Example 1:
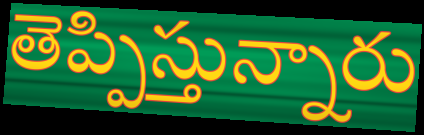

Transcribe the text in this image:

తెప్పిస్తున్నారు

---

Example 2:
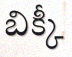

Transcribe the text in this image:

బిక్కీ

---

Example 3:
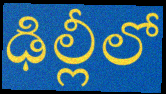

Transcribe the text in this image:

ఢిల్లీలో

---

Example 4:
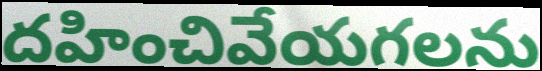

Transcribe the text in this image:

దహించివేయగలను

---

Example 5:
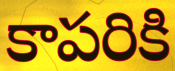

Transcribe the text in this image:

కాపరికి